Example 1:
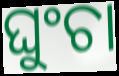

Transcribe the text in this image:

ଘୁଂଚା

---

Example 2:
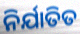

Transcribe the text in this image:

ନିର୍ଯାତିତ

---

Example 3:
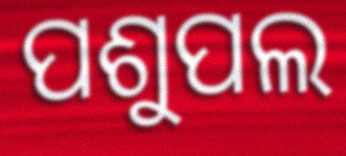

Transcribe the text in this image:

ପଶୁପଲ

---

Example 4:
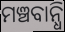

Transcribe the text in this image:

ମଞ୍ଚବାନ୍ଧି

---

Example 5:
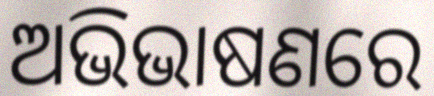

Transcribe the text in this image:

ଅଭିଭାଷଣରେ